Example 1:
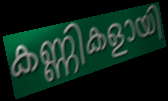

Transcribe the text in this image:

കണ്ണികളായി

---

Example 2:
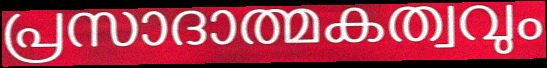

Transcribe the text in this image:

പ്രസാദാത്മകത്വവും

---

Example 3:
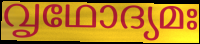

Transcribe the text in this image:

വൃഥോദ്യമഃ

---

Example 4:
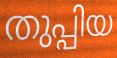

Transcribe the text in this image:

തുപ്പിയ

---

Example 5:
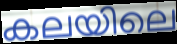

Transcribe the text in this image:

കലയിലെ